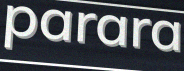
parara